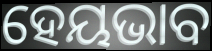
ହେୟଭାବ